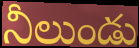
నీలుండు